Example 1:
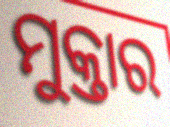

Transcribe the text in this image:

ମୁକ୍ତାର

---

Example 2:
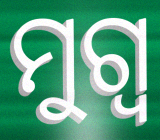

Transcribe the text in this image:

ମୁଗ୍ୱ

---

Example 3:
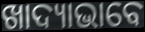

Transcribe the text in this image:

ଖାଦ୍ୟାଭାବେ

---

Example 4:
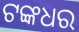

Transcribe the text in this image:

ଟଙ୍କଧର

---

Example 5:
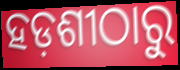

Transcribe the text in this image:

ହଡ଼ଶୀଠାରୁ